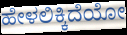
ಹೇಳಲಿಕ್ಕಿದೆಯೋ